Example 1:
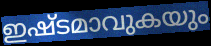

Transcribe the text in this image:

ഇഷ്ടമാവുകയും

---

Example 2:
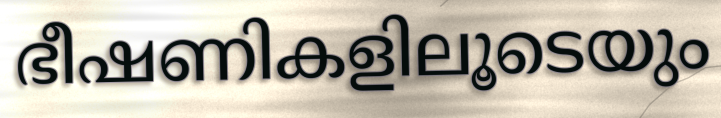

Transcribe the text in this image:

ഭീഷണികളിലൂടെയും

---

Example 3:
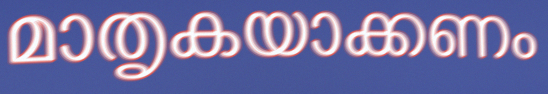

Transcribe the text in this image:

മാതൃകയാക്കണം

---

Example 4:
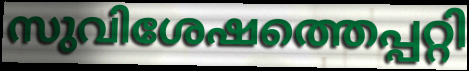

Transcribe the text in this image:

സുവിശേഷത്തെപ്പറ്റി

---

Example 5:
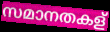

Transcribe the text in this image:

സമാനതകള്